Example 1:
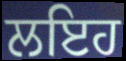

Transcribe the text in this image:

ਲਇਹ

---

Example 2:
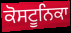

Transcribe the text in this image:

ਕੋਸਟੂਨਿਕਾ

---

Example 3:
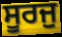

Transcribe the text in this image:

ਸੂਰਜੁ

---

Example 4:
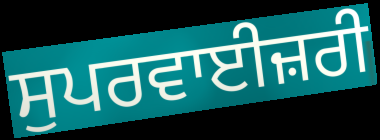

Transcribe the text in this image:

ਸੁਪਰਵਾਈਜ਼ਰੀ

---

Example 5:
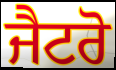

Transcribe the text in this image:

ਜੈਟਰੋ